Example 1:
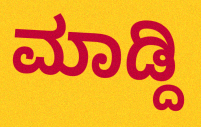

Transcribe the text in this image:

ಮಾಡ್ದಿ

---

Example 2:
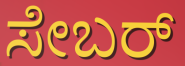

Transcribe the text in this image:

ಸೇಬರ್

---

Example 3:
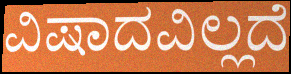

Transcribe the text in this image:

ವಿಷಾದವಿಲ್ಲದೆ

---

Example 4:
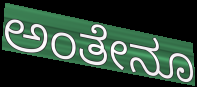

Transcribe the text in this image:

ಅಂತೇನೂ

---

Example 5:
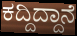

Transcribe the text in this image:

ಕದ್ದಿದ್ದಾನೆ